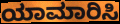
ಯಾಮಾರಿಸಿ